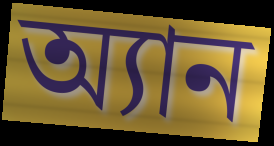
অ্যান